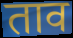
ताव